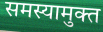
समस्यामुक्त